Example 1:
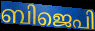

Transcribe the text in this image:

ബിജെപി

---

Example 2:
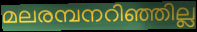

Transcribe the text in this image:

മലരമ്പനറിഞ്ഞില്ല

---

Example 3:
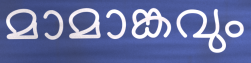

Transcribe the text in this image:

മാമാങ്കവും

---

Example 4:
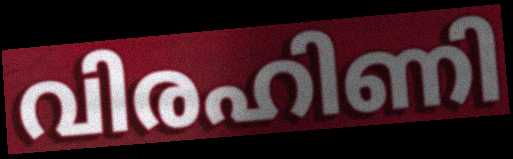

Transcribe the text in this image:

വിരഹിണി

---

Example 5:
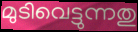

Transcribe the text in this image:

മുടിവെട്ടുന്നതു